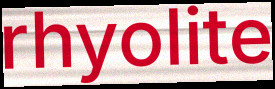
rhyolite